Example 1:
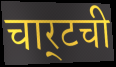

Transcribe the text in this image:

चार्टची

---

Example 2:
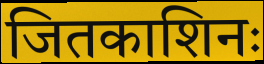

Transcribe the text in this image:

जितकाशिनः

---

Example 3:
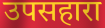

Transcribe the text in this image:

उपसहारा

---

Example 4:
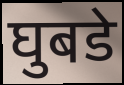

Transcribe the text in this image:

घुबडे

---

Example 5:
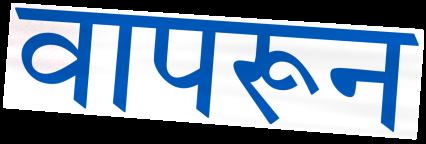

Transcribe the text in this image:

वापरून